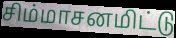
சிம்மாசனமிட்டு